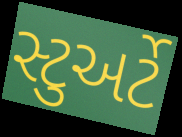
સ્ટુઅર્ટે